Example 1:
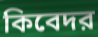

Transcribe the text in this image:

কিবেদর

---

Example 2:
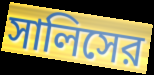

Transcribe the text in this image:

সালিসের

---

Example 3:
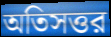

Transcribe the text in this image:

অতিসত্তর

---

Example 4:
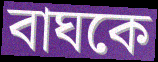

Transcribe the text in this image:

বাঘকে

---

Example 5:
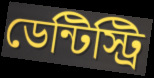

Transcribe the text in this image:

ডেন্টিস্ট্রি